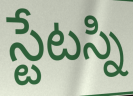
స్టేటస్ని